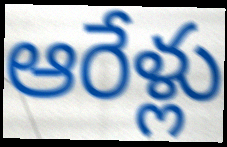
ఆరేళ్లు